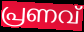
പ്രണവ്